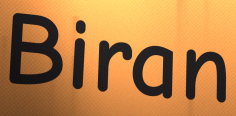
Biran